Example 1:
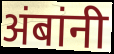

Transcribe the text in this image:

अंबांनी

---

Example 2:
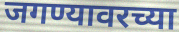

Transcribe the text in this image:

जगण्यावरच्या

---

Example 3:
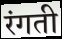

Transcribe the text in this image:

रंगती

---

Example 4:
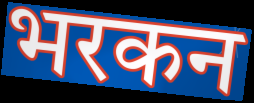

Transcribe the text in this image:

भरकन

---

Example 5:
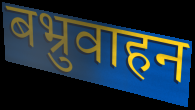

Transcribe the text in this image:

बभ्रुवाहन